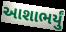
આશાભર્યું